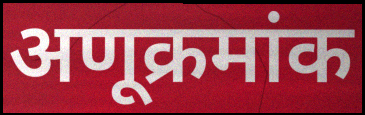
अणूक्रमांक